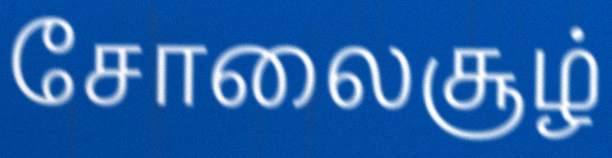
சோலைசூழ்